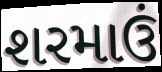
શરમાઉં